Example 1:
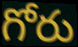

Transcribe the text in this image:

గోరు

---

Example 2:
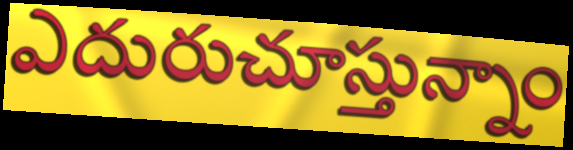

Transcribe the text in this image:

ఎదురుచూస్తున్నాం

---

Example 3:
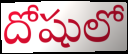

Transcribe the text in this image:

దోషులో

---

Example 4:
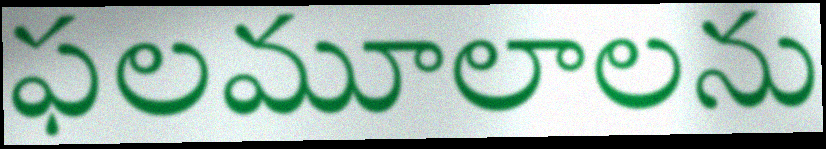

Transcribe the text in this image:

ఫలమూలాలను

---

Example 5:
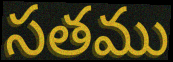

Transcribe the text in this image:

సతము